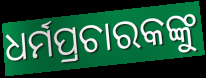
ଧର୍ମପ୍ରଚାରକଙ୍କୁ